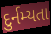
દુર્નમ્યતા